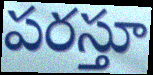
పరస్తూ